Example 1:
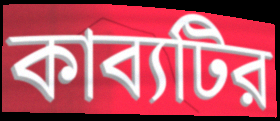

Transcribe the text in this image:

কাব্যটির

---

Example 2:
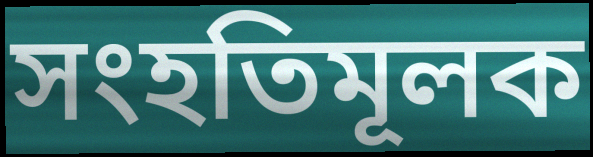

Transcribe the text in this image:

সংহতিমূলক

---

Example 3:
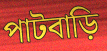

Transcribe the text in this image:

পাটবাড়ি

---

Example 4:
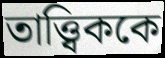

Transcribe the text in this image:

তাত্ত্বিককে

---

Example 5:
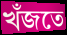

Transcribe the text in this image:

খঁজতে